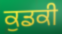
ਕੁਡਕੀ